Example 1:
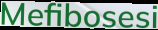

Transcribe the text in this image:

Mefibosesi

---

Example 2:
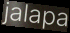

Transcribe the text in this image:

jalapa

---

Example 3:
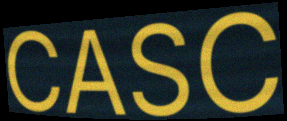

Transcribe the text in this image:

CASC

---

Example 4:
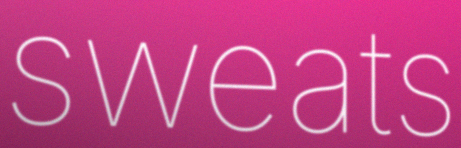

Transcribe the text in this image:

sweats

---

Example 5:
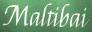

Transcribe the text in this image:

Maltibai